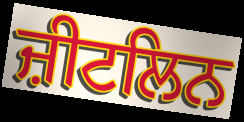
ਜ਼ੀਟਲਿਨ